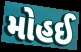
મોહઈ